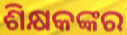
ଶିକ୍ଷକଙ୍କର